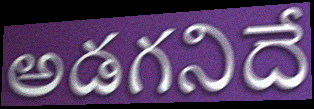
అడగనిదే